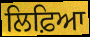
ਲਿਫ਼ਿਆ